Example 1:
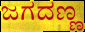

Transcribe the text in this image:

ಜಗದಣ್ಣ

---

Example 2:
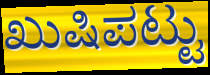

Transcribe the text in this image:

ಖುಷಿಪಟ್ಟು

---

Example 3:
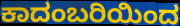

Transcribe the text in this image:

ಕಾದಂಬರಿಯಿಂದ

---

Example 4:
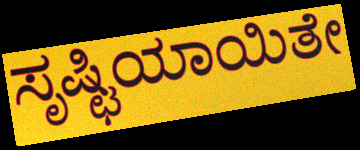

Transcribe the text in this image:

ಸೃಷ್ಟಿಯಾಯಿತೇ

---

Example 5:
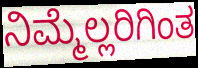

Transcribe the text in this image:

ನಿಮ್ಮೆಲ್ಲರಿಗಿಂತ